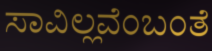
ಸಾವಿಲ್ಲವೆಂಬಂತೆ